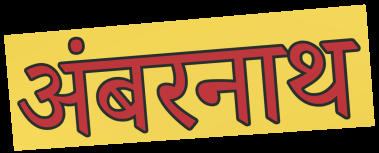
अंबरनाथ